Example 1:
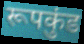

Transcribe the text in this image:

रूपकुंड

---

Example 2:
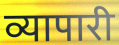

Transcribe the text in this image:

व्यापारी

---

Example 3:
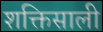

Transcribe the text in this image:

शक्तिसाली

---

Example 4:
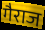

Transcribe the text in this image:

गैराज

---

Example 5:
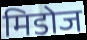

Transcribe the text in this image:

मिडोज